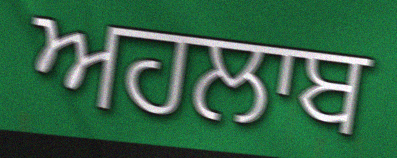
ਅਹਲਾਬ